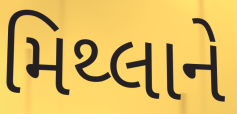
મિથ્લાને